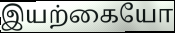
இயற்கையோ